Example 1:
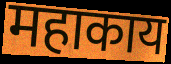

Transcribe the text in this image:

महाकाय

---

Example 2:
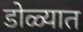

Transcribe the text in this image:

डोळ्यात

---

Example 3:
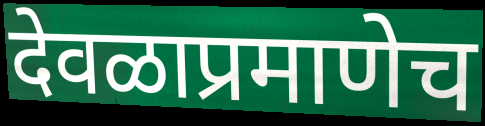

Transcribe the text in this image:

देवळाप्रमाणेच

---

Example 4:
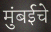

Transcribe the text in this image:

मुंबईचे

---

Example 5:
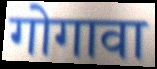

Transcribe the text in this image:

गोगावा